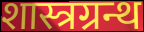
शास्त्रग्रन्थ